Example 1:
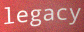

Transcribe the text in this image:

legacy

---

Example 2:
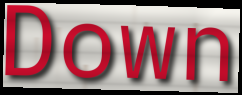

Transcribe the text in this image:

Down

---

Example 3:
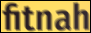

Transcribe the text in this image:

fitnah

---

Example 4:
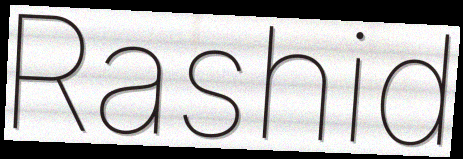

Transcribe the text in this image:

Rashid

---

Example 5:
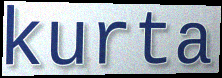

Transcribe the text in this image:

kurta